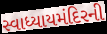
સ્વાધ્યાયમંદિરની